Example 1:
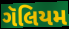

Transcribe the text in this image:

ગૅલિયમ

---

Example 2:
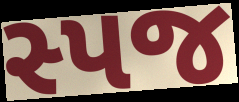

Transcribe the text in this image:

સ્પજ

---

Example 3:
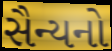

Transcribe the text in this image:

સૈન્યનો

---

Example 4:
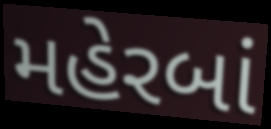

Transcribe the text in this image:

મહેરબાં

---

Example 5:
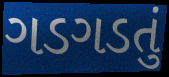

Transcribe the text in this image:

ગડગડતું